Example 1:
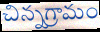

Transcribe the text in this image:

చిన్నగ్రామం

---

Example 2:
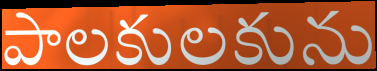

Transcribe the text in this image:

పాలకులకును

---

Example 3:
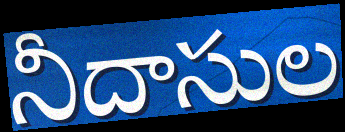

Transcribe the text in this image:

నీదాసుల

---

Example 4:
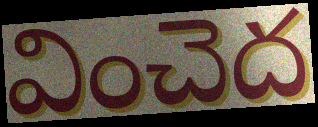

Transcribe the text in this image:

వించెద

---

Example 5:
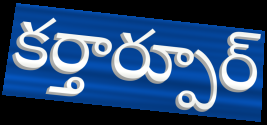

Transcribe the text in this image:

కర్తార్పూర్